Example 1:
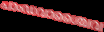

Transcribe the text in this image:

പാംഡവാശ്ചൈവ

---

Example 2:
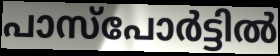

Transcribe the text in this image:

പാസ്പോർട്ടിൽ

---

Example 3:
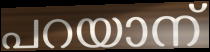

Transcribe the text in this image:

പറയാന്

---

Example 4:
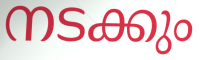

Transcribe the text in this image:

നടക്കും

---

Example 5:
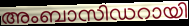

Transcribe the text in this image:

അംബാസിഡറായി